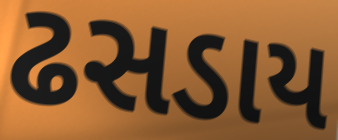
ઢસડાય